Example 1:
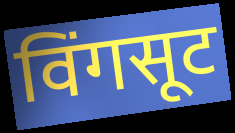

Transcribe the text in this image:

विंगसूट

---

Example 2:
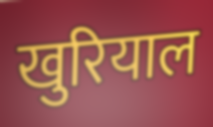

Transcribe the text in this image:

खुरियाल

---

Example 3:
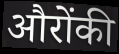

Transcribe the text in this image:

औरोंकी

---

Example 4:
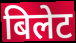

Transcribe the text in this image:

बिलेट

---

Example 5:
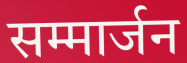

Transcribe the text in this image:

सम्मार्जन